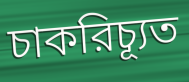
চাকরিচ্যূত